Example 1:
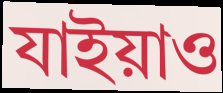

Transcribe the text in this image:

যাইয়াও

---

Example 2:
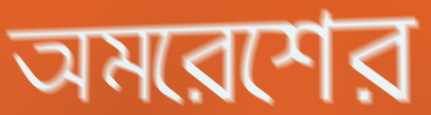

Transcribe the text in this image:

অমরেশের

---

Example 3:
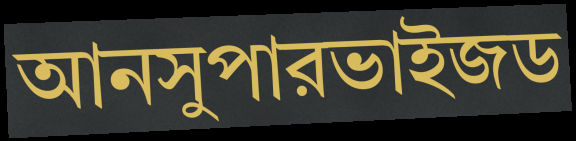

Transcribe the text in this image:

আনসুপারভাইজড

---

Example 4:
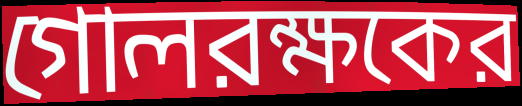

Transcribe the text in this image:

গোলরক্ষকের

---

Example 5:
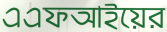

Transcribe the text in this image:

এএফআইয়ের